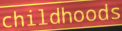
childhoods